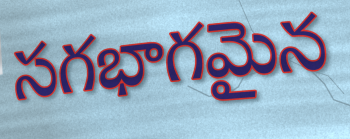
సగభాగమైన